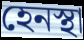
হেনস্থা